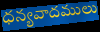
ధన్యవాదములు